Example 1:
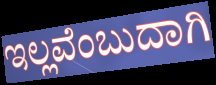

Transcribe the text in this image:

ಇಲ್ಲವೆಂಬುದಾಗಿ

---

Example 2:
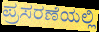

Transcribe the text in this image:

ಪ್ರಸರಣೆಯಲ್ಲಿ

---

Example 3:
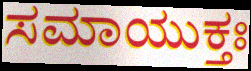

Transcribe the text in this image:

ಸಮಾಯುಕ್ತಃ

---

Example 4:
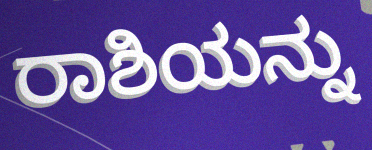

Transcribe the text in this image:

ರಾಶಿಯನ್ನು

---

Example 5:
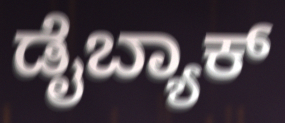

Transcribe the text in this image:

ಡೈಬ್ಯಾಕ್